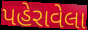
પહેરાવેલા